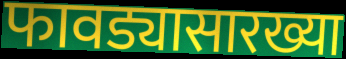
फावड्यासारख्या